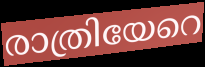
രാത്രിയേറെ